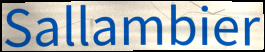
Sallambier